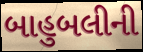
બાહુબલીની